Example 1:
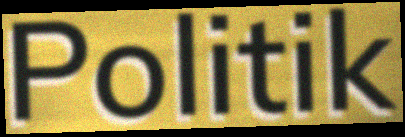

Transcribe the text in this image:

Politik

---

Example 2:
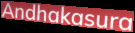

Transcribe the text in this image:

Andhakasura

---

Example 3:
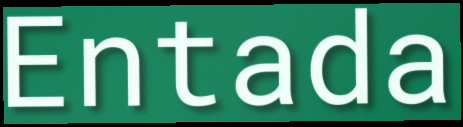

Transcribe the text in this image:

Entada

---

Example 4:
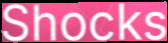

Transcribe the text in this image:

Shocks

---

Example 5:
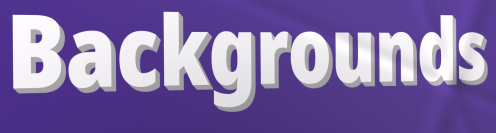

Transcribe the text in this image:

Backgrounds